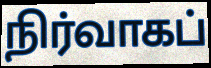
நிர்வாகப்